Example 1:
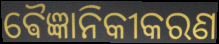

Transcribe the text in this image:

ଵୈଜ୍ଞାନିକୀକରଣ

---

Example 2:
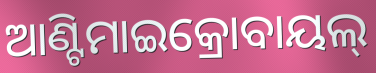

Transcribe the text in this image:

ଆଣ୍ଟିମାଇକ୍ରୋବାୟଲ୍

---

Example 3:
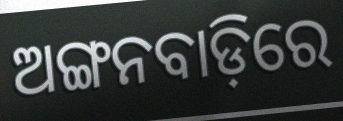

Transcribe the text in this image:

ଅଙ୍ଗନବାଡ଼ିରେ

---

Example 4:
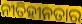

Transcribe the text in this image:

ନୀତିହୀନତାର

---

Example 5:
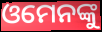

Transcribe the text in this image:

ଓମେନଙ୍କୁ